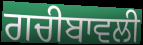
ਗਚੀਬਾਵਲੀ